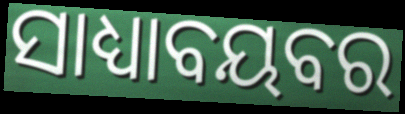
ସାଧ୍ୟାବୟବର